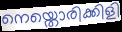
നെയ്തൊരിക്കിളി